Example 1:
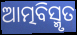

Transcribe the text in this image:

ଆତ୍ମବିସ୍ମୃତ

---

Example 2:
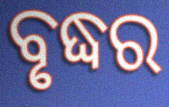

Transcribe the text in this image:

ବୃଦ୍ଧର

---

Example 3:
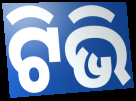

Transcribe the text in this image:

ଟିଭି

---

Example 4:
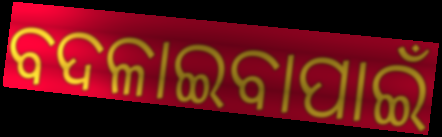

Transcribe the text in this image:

ବଦଳାଇବାପାଇଁ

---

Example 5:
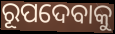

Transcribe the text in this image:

ରୂପଦେବାକୁ